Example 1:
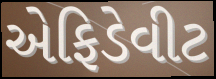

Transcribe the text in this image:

એફિડેવીટ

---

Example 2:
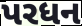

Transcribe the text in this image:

પરધન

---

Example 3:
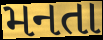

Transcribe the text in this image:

મનતા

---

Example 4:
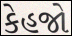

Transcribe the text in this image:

કેહજો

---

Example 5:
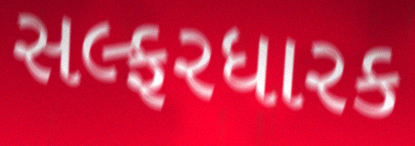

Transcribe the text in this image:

સલ્ફરધારક